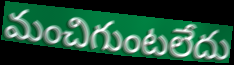
మంచిగుంటలేదు